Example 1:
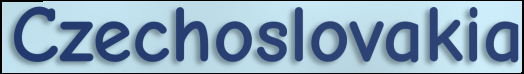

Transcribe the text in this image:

Czechoslovakia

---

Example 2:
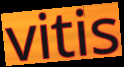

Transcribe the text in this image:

vitis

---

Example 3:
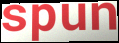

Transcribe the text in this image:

spun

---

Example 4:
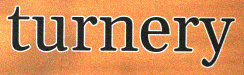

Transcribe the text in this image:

turnery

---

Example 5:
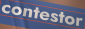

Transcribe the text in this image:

contestor